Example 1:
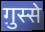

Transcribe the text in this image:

ग़ुस्से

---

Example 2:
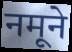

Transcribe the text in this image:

नमूने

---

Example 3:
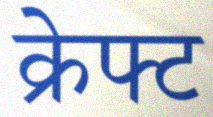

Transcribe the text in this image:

क्रेफ्ट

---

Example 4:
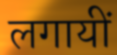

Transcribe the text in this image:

लगायीं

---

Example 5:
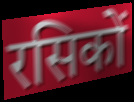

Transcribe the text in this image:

रसिकों